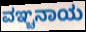
ವಞ್ಚನಾಯ